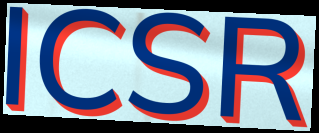
ICSR